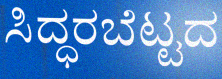
ಸಿದ್ಧರಬೆಟ್ಟದ